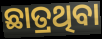
ଛାତ୍ରଥିବା